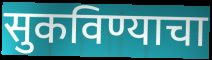
सुकविण्याचा